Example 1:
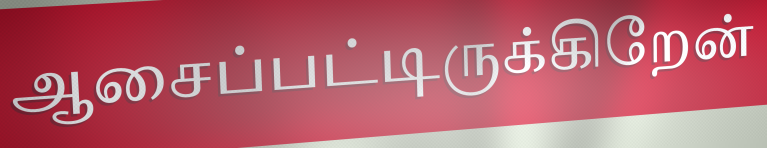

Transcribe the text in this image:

ஆசைப்பட்டிருக்கிறேன்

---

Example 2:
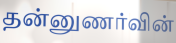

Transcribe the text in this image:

தன்னுணர்வின்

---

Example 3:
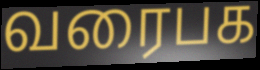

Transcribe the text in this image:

வரைபக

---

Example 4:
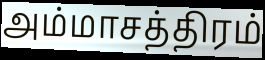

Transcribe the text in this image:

அம்மாசத்திரம்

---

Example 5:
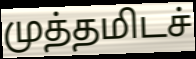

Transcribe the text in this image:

முத்தமிடச்